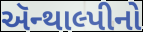
ઍન્થાલ્પીનો